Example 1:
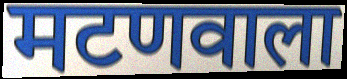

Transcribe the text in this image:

मटणवाला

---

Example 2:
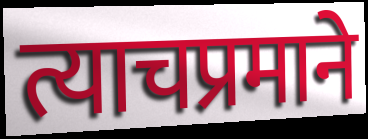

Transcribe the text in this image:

त्याचप्रमाने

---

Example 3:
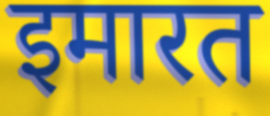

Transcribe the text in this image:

इमारत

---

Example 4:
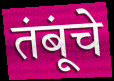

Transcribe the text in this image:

तंबूंचे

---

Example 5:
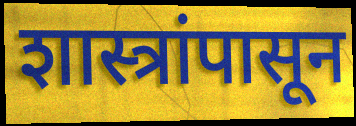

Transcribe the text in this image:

शास्त्रांपासून